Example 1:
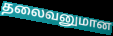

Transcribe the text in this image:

தலைவனுமான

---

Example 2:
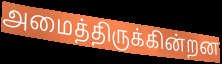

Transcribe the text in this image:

அமைத்திருக்கின்றன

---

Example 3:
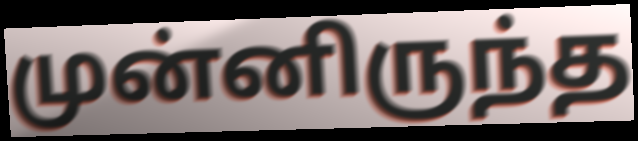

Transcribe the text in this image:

முன்னிருந்த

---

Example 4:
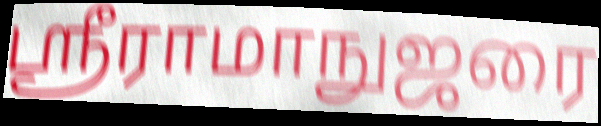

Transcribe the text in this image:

ஸ்ரீராமாநுஜரை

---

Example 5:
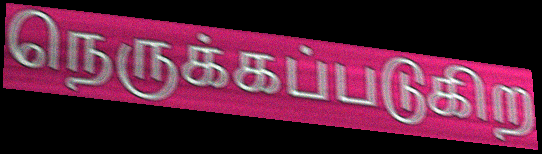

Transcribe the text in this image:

நெருக்கப்படுகிற